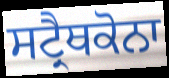
ਸਟ੍ਰੈਥਕੋਨਾ